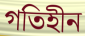
গতিহীন